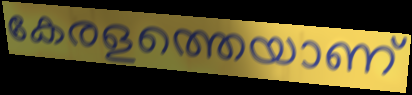
കേരളത്തെയാണ്